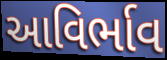
આવિર્ભાવ